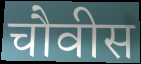
चौवीस